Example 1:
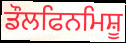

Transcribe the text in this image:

ਡੌਲਫਿਨਮਿਸ਼ੂ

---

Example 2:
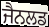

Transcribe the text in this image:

ਜੈਨਲਡ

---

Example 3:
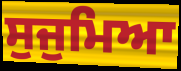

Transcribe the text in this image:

ਸੁਜੁਮਿਆ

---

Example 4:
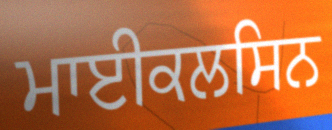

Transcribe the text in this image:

ਮਾਈਕਲਸਿਨ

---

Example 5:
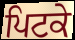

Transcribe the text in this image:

ਪਿਟਕੇ